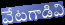
వేటగాడివి